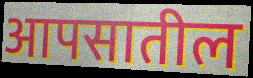
आपसातील